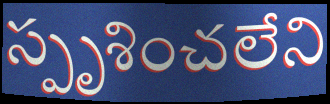
స్పృశించలేని